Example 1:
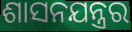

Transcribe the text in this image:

ଶାସନଯନ୍ତ୍ରର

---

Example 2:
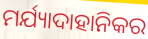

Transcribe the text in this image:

ମର୍ଯ୍ୟାଦାହାନିକର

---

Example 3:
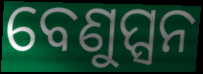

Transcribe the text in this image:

ବେଣୁପ୍ସନ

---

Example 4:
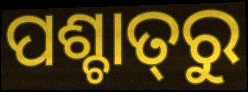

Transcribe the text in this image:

ପଶ୍ଚାତ୍‌ରୁ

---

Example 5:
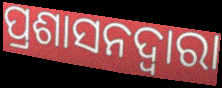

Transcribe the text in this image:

ପ୍ରଶାସନଦ୍ୱାରା